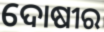
ଦୋଷୀର